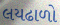
લયઢાળો